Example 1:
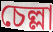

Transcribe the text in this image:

চেল্লা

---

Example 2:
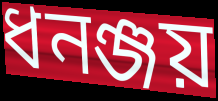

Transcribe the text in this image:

ধনঞ্জয়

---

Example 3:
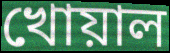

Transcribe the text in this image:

খোয়াল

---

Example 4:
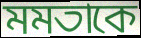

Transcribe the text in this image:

মমতাকে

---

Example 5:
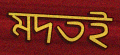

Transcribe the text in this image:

মদতই